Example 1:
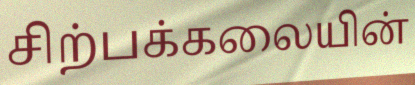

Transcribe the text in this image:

சிற்பக்கலையின்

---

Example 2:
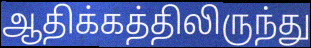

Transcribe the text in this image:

ஆதிக்கத்திலிருந்து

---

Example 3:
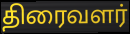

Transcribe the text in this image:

திரைவளர்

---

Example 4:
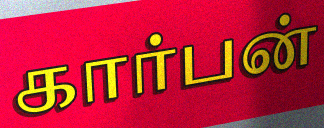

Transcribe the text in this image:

கார்பன்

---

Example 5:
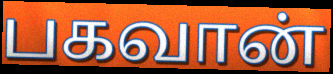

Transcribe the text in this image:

பகவான்